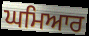
ਘਮਿਆਰ